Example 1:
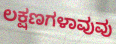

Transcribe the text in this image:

ಲಕ್ಷಣಗಳಾವುವು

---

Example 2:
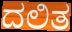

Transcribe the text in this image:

ದಲಿತ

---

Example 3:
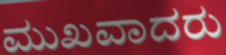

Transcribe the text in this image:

ಮುಖವಾದರು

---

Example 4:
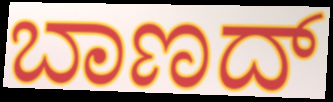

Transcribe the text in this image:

ಬಾಣದ್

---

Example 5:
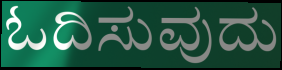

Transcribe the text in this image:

ಓದಿಸುವುದು